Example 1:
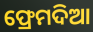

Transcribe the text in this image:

ଫ୍ରେମଦିଆ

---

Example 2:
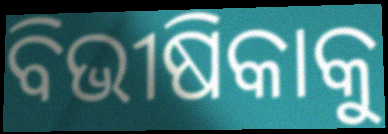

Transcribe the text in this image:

ବିଭୀଷିକାକୁ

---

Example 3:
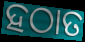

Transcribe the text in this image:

ହଠାତ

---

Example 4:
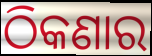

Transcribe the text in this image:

ଠିକଣାର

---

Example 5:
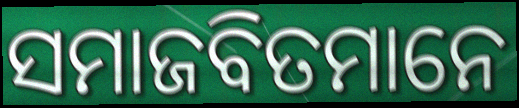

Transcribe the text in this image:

ସମାଜବିତମାନେ